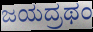
ಜಯದ್ರಥಂ